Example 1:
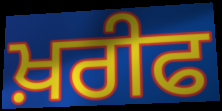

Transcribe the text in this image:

ਖ਼ਰੀਫ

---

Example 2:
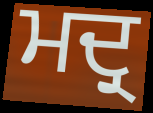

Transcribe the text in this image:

ਮਦ੍ਰ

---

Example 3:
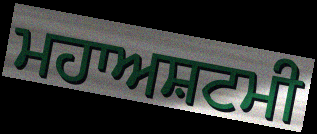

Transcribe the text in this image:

ਮਹਾਅਸ਼ਟਮੀ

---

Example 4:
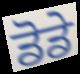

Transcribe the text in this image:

ਡੋਡੇ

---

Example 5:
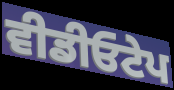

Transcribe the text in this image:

ਵੀਡੀਓਟੇਪ